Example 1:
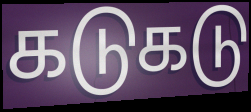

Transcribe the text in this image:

கடுகடு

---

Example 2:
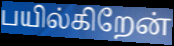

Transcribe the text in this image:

பயில்கிறேன்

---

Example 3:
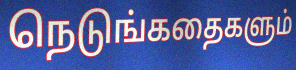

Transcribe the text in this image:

நெடுங்கதைகளும்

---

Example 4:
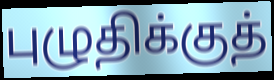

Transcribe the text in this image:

புழுதிக்குத்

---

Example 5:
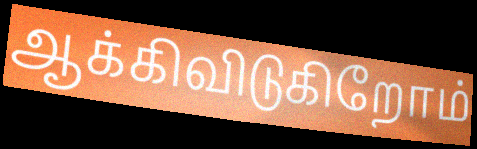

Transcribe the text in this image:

ஆக்கிவிடுகிறோம்